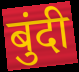
बुंदी